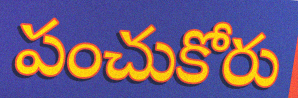
పంచుకోరు